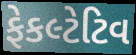
ફેકલ્ટેટિવ